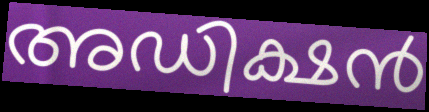
അഡിക്ഷൻ